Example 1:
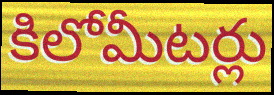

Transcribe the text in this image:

కిలోమీటర్లు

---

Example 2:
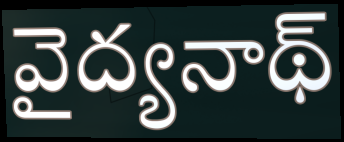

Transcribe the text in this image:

వైద్యనాథ్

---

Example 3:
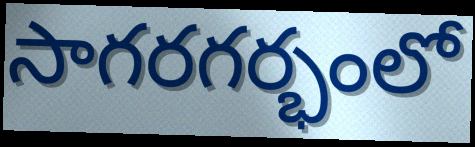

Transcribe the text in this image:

సాగరగర్భంలో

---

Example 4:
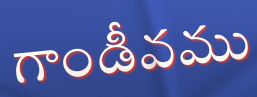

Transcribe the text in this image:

గాండీవము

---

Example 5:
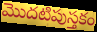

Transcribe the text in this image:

మొదటిపుస్తకం